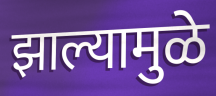
झाल्यामुळे